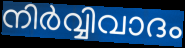
നിർവ്വിവാദം